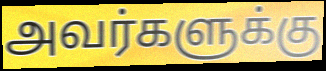
அவர்களுக்கு